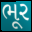
ભૂર